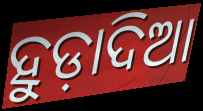
ହୁଡ଼ାଦିଆ